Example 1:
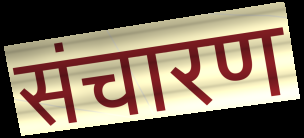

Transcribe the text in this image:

संचारण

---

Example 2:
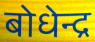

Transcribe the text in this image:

बोधेन्द्र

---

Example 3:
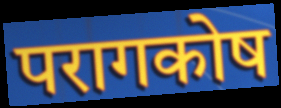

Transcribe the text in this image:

परागकोष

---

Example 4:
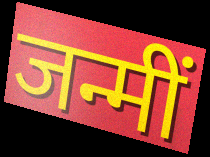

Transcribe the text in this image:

जन्मीं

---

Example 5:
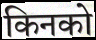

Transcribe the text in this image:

किनको